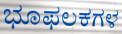
ಭೂಫಲಕಗಳ